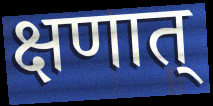
क्षणात्